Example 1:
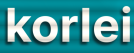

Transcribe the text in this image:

korlei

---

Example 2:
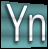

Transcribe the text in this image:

Yn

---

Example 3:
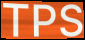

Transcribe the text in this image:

TPS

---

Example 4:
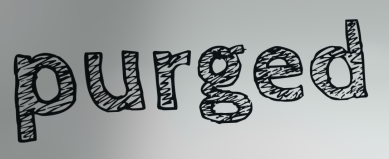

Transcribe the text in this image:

purged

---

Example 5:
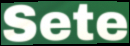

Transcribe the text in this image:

Sete